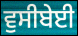
ਵੁਸੀਬੇਈ